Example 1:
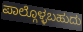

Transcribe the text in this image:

ಪಾಲ್ಗೊಳ್ಳಬಹುದು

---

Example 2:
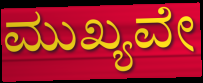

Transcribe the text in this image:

ಮುಖ್ಯವೇ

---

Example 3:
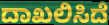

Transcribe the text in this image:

ದಾಖಲಿಸಿದೆ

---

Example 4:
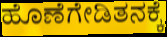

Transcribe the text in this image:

ಹೊಣೆಗೇಡಿತನಕ್ಕೆ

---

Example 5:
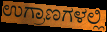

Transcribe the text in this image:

ಉಗ್ರಾಣಗಳಲ್ಲಿ